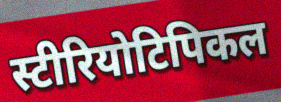
स्टीरियोटिपिकल